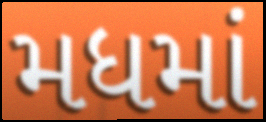
મધમાં